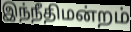
இந்நீதிமன்றம்